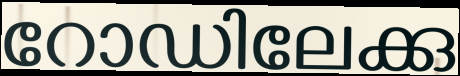
റോഡിലേക്കു